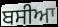
ਬਸੀਆ